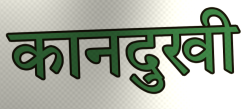
कानदुखी